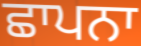
ਛਾਪਨਾ